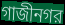
গাজীনগর